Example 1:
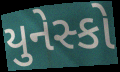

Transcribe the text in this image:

યુનેસ્કો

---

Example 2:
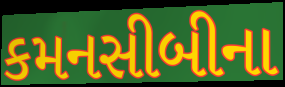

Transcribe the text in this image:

કમનસીબીના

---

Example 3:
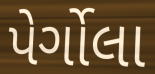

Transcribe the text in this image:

પેર્ગોલા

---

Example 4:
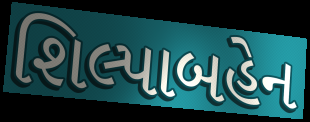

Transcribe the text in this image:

શિલ્પાબહેન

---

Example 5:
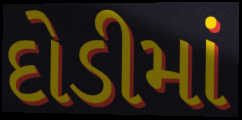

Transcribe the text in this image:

દોડીમાં